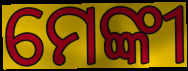
ମେଙ୍କୀ